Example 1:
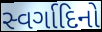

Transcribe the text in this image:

સ્વર્ગાદિનો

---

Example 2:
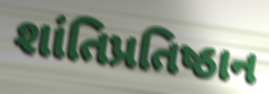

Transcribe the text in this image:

શાંતિપ્રતિષ્ઠાન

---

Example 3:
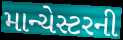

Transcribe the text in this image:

માન્ચેસ્ટરની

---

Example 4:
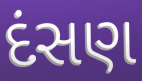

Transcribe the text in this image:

દંસણ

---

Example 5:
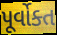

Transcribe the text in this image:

પૂર્વોક્ત